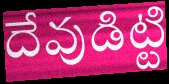
దేవుడిట్టి